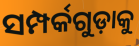
ସମ୍ପର୍କଗୁଡ଼ାକୁ